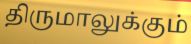
திருமாலுக்கும்